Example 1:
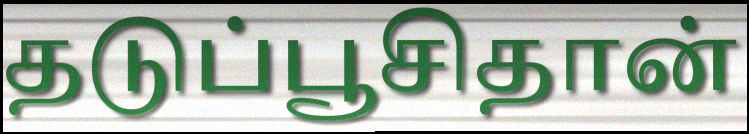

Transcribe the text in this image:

தடுப்பூசிதான்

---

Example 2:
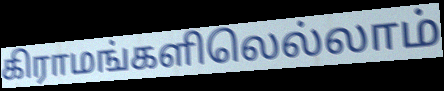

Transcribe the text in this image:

கிராமங்களிலெல்லாம்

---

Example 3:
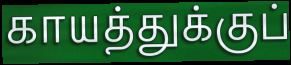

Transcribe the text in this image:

காயத்துக்குப்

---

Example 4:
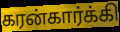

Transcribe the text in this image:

கரன்கார்க்கி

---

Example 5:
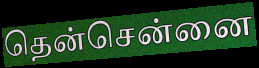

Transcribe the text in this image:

தென்சென்னை